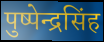
पुष्पेन्द्रसिंह